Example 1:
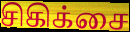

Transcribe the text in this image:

சிகிக்சை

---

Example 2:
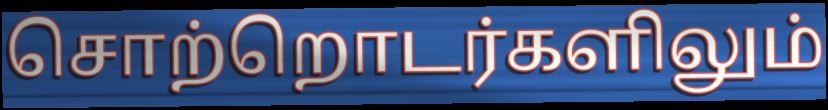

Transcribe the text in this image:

சொற்றொடர்களிலும்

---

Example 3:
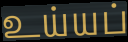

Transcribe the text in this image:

உய்யப்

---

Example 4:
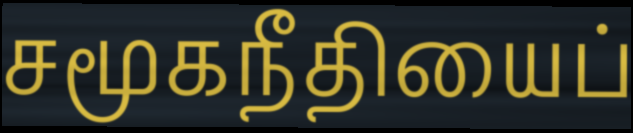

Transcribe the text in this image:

சமூகநீதியைப்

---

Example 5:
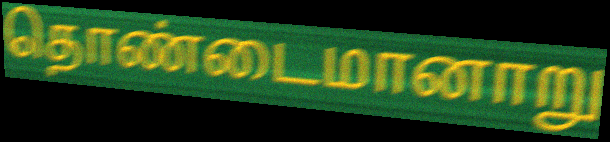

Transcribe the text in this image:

தொண்டைமானாறு